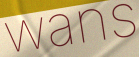
wans